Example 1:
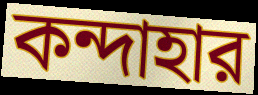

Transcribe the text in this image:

কন্দাহার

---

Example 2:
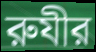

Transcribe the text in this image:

রুযীর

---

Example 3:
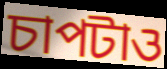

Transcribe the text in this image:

চাপটাও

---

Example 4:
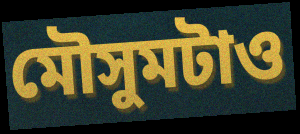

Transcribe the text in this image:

মৌসুমটাও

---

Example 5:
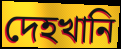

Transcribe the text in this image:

দেহখানি